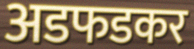
अडफडकर